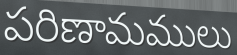
పరిణామములు